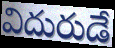
విదురుడే